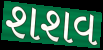
શશવ